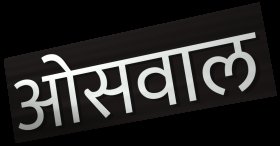
ओसवाल